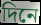
দিনে